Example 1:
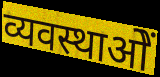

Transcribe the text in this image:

व्यवस्थाओें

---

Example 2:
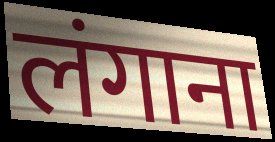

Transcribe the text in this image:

लंगाना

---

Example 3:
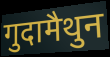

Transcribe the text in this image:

गुदामैथुन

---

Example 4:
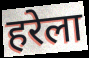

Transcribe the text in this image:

हरेला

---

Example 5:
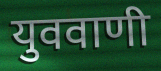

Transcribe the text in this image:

युववाणी